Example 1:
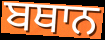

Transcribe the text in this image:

ਬਥਾਨ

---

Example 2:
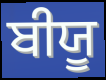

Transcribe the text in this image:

ਬੀਯੂ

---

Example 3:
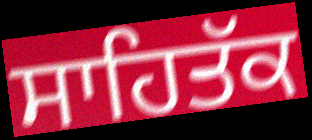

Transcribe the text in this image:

ਸਾਹਿਤੱਕ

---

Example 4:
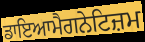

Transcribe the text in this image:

ਡਾਇਆਮੈਗਨੇਟਿਜ਼ਮ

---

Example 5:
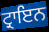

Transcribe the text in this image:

ਟ੍ਰਾਇਨ